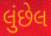
લુંછેલ